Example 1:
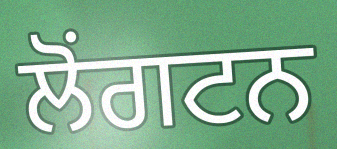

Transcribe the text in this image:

ਲੋਂਗਟਨ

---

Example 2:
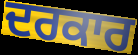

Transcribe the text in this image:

ਦਰਕਾਰ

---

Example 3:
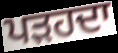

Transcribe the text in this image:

ਪੜਹਦਾ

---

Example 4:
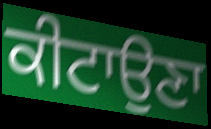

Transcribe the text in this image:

ਕੀਟਾਉਣਾ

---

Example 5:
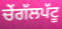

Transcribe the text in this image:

ਚੇਂਗੱਲਪੱਟੂ